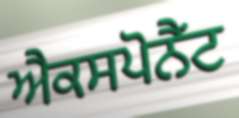
ਐਕਸਪੋਨੈਂਟ